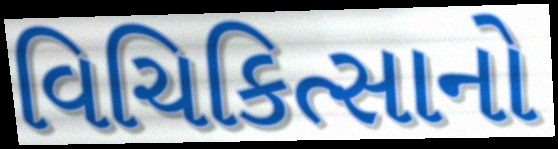
વિચિકિત્સાનો